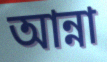
আন্না